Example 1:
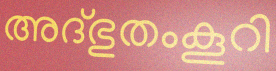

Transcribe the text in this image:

അദ്ഭുതംകൂറി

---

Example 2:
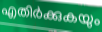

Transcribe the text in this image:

എതിർക്കുകയും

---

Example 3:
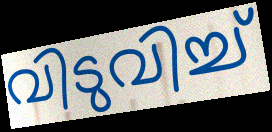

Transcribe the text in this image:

വിടുവിച്ച്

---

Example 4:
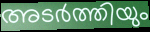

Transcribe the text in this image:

അടർത്തിയും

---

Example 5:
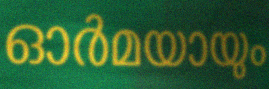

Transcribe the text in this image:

ഓർമയായും